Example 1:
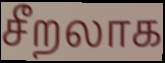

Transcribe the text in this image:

சீறலாக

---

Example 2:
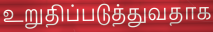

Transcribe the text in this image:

உறுதிப்படுத்துவதாக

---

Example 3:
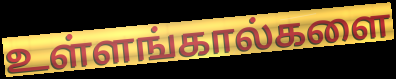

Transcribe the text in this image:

உள்ளங்கால்களை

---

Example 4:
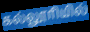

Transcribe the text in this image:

கல்லூரியில்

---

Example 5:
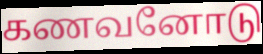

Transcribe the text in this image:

கணவனோடு